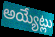
అయ్యేట్లు